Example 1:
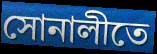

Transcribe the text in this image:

সোনালীতে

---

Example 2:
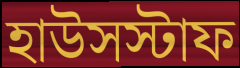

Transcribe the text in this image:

হাউসস্টাফ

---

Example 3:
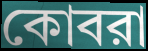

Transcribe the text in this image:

কোবরা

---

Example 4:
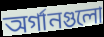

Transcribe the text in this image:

অর্গানগুলো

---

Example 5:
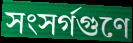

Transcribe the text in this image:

সংসর্গগুণে